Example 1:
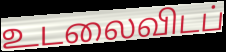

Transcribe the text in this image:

உடலைவிடப்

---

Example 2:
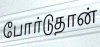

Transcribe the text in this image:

போர்டுதான்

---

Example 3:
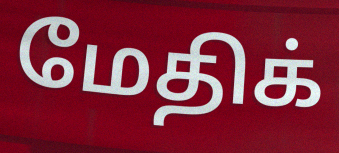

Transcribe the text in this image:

மேதிக்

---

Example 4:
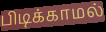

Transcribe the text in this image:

பிடிக்காமல்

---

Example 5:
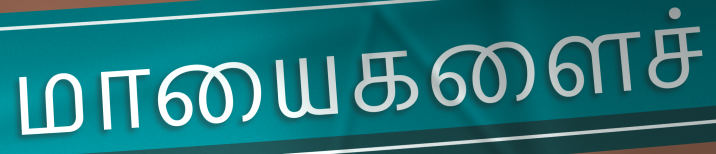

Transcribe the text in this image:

மாயைகளைச்